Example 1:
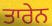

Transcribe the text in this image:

ਤਾਰੇਨ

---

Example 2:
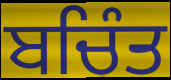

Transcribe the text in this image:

ਬਚਿੰਤ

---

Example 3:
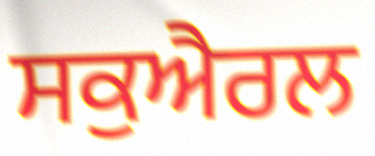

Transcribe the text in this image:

ਸਕੁਐਰਲ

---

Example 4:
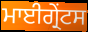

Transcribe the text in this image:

ਮਾਈਗ੍ਰੇਂਟਸ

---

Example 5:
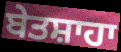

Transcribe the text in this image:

ਬੇਤਸ਼ਾਹਾ